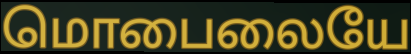
மொபைலையே